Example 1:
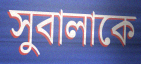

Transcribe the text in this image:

সুবালাকে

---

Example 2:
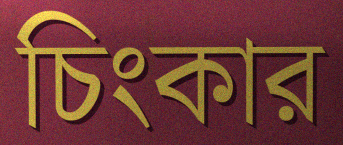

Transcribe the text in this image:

চিংকার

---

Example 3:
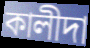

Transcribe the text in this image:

কালীদা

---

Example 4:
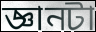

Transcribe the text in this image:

জ্ঞানটা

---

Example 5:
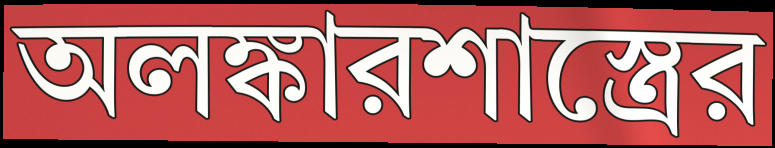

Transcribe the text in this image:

অলঙ্কারশাস্ত্রের